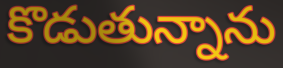
కొడుతున్నాను